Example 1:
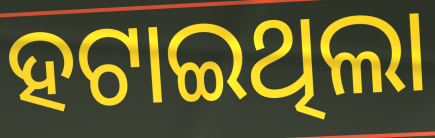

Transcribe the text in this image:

ହଟାଇଥିଲା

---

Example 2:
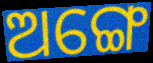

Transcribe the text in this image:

ଅଙ୍ଗେ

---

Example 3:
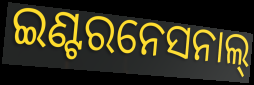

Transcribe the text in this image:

ଇଣ୍ଟରନେସନାଲ୍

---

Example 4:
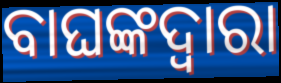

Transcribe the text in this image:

ବାଘଙ୍କଦ୍ୱାରା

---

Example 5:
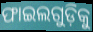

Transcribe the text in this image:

ଫାଇଲଗୁଡ଼ିକୁ